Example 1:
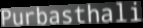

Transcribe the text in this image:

Purbasthali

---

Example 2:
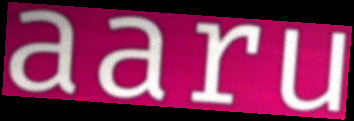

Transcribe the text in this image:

aaru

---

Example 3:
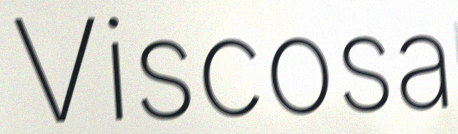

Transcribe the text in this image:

Viscosa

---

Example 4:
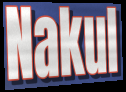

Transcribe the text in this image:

Nakul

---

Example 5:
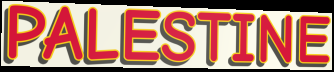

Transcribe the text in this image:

PALESTINE